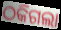
ଠକିଗଲା